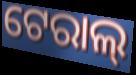
ଟେରାଲ୍